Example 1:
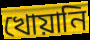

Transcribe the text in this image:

খোয়ানি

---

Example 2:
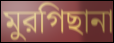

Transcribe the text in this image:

মুরগিছানা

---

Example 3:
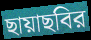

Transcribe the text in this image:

ছায়াছবির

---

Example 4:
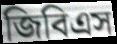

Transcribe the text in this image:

জিবিএস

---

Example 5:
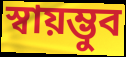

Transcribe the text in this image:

স্বায়ম্ভুব